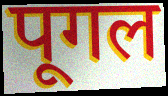
पूगल